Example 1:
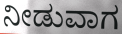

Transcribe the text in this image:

ನೀಡುವಾಗ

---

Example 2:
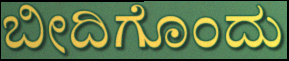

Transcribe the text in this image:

ಬೀದಿಗೊಂದು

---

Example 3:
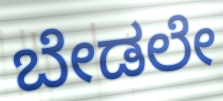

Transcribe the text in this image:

ಬೇಡಲೇ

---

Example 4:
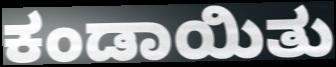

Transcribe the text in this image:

ಕಂಡಾಯಿತು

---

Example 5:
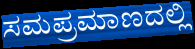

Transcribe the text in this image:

ಸಮಪ್ರಮಾಣದಲ್ಲಿ